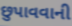
છુપાવવાની